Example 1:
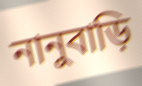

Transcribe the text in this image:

নানুবাড়ি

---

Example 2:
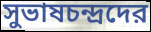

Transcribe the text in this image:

সুভাষচন্দ্রদের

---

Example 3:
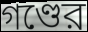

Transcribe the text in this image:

গণ্ডের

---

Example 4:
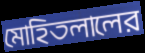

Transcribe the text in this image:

মোহিতলালের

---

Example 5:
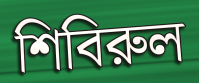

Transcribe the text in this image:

শিবিরুল